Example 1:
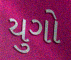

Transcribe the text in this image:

યુગો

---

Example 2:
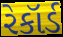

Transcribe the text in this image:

રેકૉર્ડ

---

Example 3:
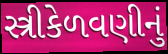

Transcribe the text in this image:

સ્ત્રીકેળવણીનું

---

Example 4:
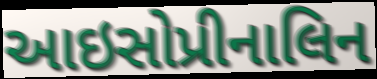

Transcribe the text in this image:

આઇસોપ્રીનાલિન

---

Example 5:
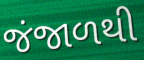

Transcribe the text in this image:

જંજાળથી